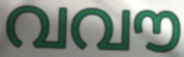
വവൗ